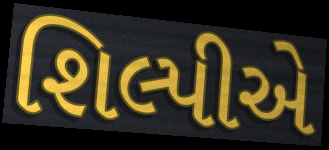
શિલ્પીએ